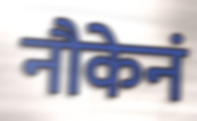
नौकेनं